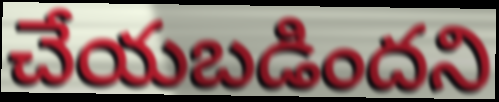
చేయబడిందని